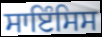
ਸਾਇੰਸਿਸ